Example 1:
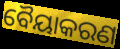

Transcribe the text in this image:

ବୈୟାକରଣ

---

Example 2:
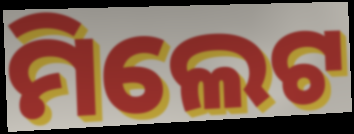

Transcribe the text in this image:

ମିଲେଟ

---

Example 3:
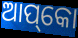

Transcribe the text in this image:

ଆପ୍‌କୋ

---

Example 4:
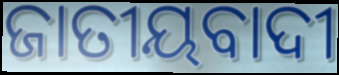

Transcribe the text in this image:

ଜାତୀୟବାଦୀ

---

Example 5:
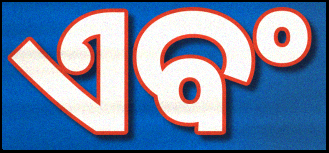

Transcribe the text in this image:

ଏବଂ